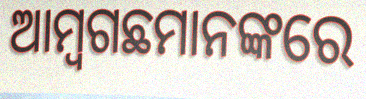
ଆମ୍ବଗଛମାନଙ୍କରେ